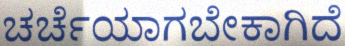
ಚರ್ಚೆಯಾಗಬೇಕಾಗಿದೆ